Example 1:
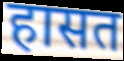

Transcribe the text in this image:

हासत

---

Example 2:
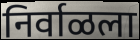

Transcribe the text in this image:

निर्वाळला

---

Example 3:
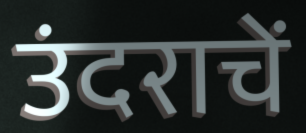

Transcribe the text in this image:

उंदराचें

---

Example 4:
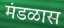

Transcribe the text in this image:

मंडळास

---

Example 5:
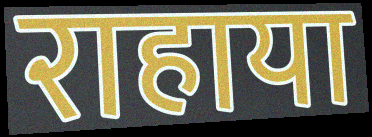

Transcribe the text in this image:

राहाया